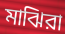
মাঝিরা